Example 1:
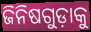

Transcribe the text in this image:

ଜିନିଷଗୁଡ଼ାକୁ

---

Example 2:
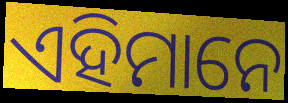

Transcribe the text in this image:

ଏହିମାନେ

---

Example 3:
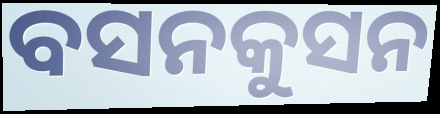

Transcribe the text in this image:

ବସନକୁସନ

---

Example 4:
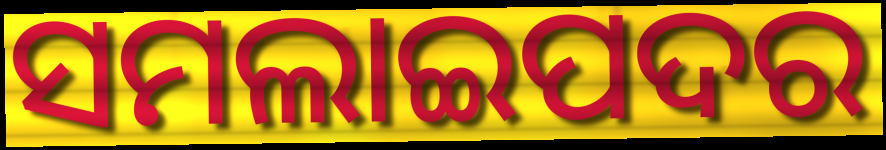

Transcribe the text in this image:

ସମଲାଇପଦର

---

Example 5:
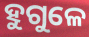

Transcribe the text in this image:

ହୁଗୁଳେ